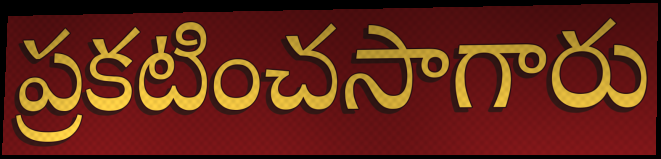
ప్రకటించసాగారు